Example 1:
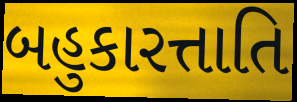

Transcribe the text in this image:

બહુકારત્તાતિ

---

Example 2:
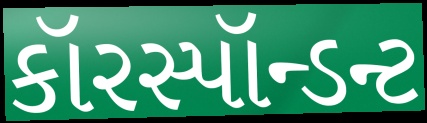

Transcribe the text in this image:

કૉરસ્પૉન્ડન્ટ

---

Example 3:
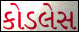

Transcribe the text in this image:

કોડલેસ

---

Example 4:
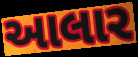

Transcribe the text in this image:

આલાર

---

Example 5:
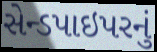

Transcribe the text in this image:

સેન્ડપાઇપરનું